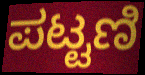
ಪಟ್ಟಣಿ